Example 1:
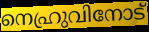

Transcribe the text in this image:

നെഹ്രുവിനോട്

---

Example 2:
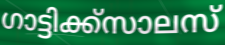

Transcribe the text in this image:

ഗാട്ടിക്ക്സാലസ്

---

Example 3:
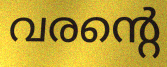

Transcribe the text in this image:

വരന്റെ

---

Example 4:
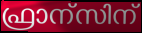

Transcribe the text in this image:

ഫ്രാന്സിന്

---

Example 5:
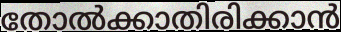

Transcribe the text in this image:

തോൽക്കാതിരിക്കാൻ